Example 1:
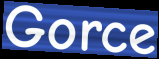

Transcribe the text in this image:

Gorce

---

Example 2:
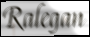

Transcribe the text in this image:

Ralegan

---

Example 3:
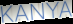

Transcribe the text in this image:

KANYA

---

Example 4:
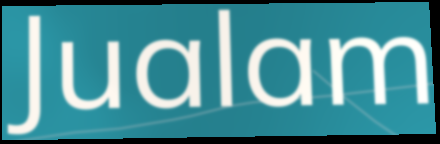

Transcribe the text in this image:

Jualam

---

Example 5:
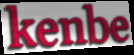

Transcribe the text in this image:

kenbe